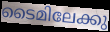
ടൈമിലേക്കു